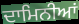
ਦਾਮਿਨੀਆਂ